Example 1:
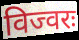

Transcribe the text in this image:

विज्वरः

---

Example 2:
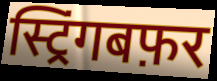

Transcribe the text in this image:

स्ट्रिंगबफ़र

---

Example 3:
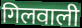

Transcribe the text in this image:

गिलवाली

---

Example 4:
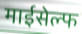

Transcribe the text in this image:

माईसेल्फ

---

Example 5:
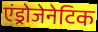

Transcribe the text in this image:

एंड्रोजेनेटिक